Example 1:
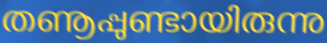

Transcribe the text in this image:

തണൂപ്പുണ്ടായിരുന്നു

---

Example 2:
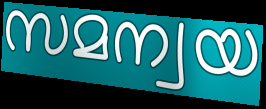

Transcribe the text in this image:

സമന്വയ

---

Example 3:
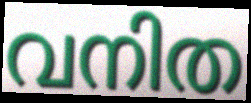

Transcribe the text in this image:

വനിത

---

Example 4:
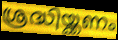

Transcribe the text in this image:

ശ്രദ്ധിയ്ക്കണം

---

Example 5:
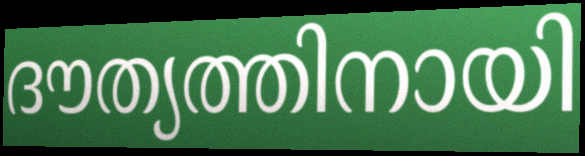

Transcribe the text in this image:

ദൗത്യത്തിനായി